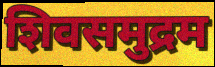
शिवसमुद्रम